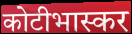
कोटीभास्कर